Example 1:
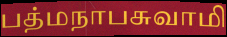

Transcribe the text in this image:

பத்மநாபசுவாமி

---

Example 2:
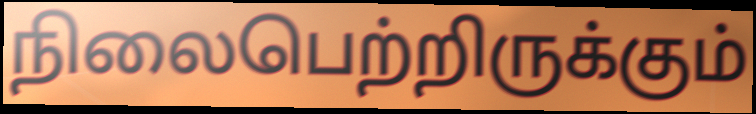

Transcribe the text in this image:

நிலைபெற்றிருக்கும்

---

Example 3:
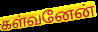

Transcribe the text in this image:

கள்வனேன்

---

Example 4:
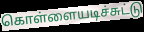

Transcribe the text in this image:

கொள்ளையடிச்சுட்டு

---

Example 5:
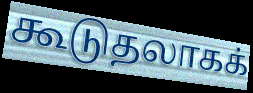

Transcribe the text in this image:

கூடுதலாகக்